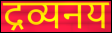
द्रव्यनय